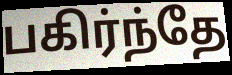
பகிர்ந்தே